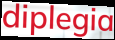
diplegia